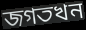
জগতখন